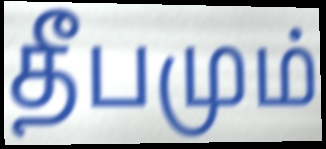
தீபமும்